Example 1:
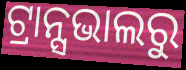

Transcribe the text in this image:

ଟ୍ରାନ୍ସଭାଲରୁ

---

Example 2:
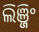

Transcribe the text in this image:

ଲିଞ୍ଜିଂ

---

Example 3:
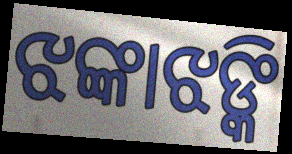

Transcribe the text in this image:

ଝଙ୍କାଝଙ୍କି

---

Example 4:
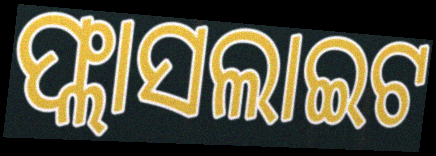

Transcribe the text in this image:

ଫ୍ଲାସଲାଇଟ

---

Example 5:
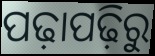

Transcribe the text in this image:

ପଢ଼ାପଢ଼ିରୁ